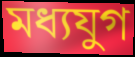
মধ্যযুগ